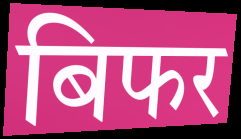
बिफर